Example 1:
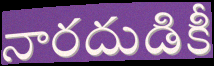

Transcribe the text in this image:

నారదుడికీ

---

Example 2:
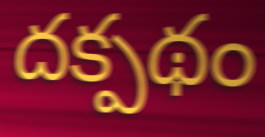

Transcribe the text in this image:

దక్పథం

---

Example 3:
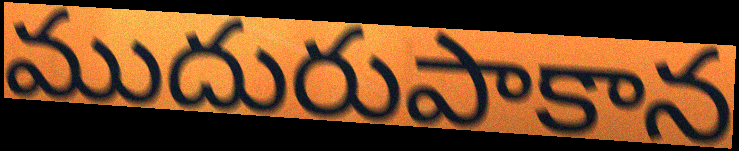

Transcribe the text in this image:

ముదురుపాకాన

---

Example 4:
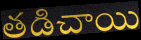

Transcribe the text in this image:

తడిచాయి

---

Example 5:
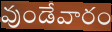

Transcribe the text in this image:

వుండేవారం